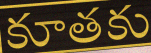
కూతకు